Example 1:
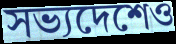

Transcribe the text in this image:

সভ্যদেশেও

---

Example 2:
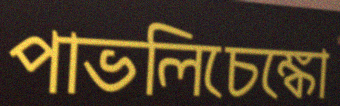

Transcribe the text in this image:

পাভলিচেঙ্কো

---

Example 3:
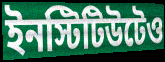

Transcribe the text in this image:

ইনস্টিটিউটেও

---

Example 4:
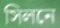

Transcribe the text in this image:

সিলনে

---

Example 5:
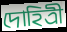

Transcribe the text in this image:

দোহিত্রী